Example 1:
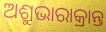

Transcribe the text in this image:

ଅଶ୍ରୁଭାରାକ୍ରାନ୍ତ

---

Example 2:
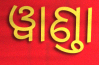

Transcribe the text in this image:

ୱାଣ୍ଡା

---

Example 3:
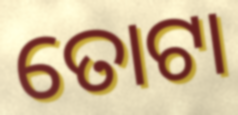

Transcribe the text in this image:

ତୋଟା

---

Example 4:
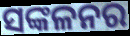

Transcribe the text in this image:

ସଙ୍କଳନର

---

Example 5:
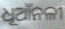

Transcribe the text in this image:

ଧୂଆଁନଳୀ